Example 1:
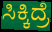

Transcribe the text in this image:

ಸಿಕ್ಕಿದ್ರೆ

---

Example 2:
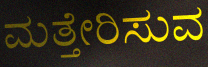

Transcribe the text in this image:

ಮತ್ತೇರಿಸುವ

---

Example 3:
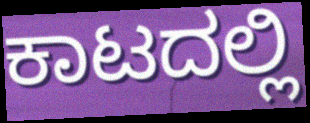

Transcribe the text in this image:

ಕಾಟದಲ್ಲಿ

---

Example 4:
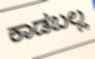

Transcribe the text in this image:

ಕಾಡಬಲ್ಲ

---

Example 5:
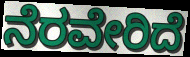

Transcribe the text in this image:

ನೆರವೇರಿದೆ